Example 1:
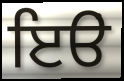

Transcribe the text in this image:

ਇੳਂ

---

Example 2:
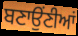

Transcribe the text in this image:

ਬਣਾਉਂਣੀਆਂ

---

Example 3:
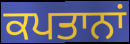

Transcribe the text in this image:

ਕਪਤਾਨਾਂ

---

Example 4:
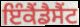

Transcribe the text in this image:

ਇੰਕੈਂਡੈਸੈਂਟ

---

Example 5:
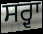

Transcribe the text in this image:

ਸਰ੍ਦਾ